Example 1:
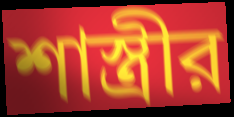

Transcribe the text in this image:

শাস্ত্রীর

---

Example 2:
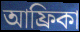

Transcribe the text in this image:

আফ্রিকা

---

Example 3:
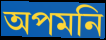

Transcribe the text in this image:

অপমনি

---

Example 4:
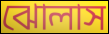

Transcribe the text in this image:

ঝোলাস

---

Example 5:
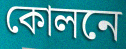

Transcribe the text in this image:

কোলনে